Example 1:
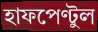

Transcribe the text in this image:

হাফপেণ্টুল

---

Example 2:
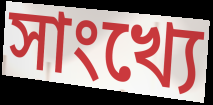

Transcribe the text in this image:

সাংখ্যে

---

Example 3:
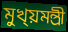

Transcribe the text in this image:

মুখ্য়মন্ত্রী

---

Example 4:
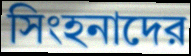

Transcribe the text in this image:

সিংহনাদের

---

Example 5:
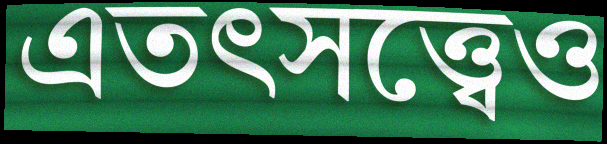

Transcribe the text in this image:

এতৎসত্ত্বেও